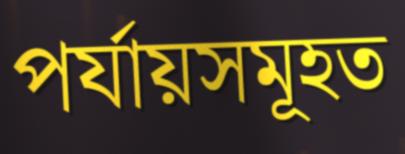
পৰ্যায়সমূহত